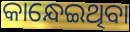
କାନ୍ଧେଇଥିବା